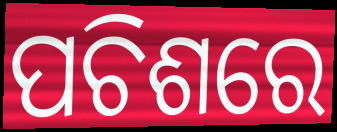
ପଚିଶରେ